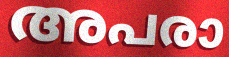
അപരാ